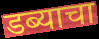
डब्याचा